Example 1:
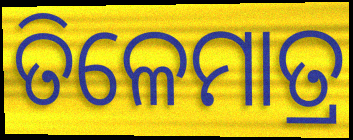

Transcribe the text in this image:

ତିଳେମାତ୍ର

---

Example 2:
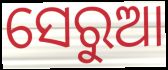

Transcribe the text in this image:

ସେରୁଆ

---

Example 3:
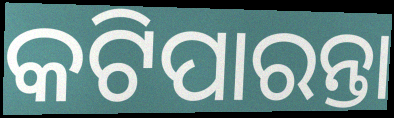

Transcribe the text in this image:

କଟିପାରନ୍ତା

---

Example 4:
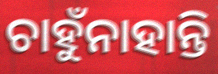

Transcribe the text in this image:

ଚାହୁଁନାହାନ୍ତି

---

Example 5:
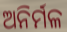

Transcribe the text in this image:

ଅନିର୍ମଳ